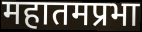
महातमप्रभा